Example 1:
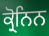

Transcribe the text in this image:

ਕ੍ਰੋਨਿਨ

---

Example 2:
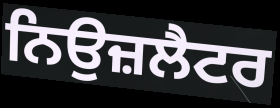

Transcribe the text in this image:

ਨਿਉਜ਼ਲੈਟਰ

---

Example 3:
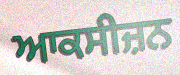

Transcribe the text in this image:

ਆਕਸੀਜ਼ਨ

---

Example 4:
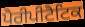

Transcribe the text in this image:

ਪੈਰੀਪੀਟੈਟਿਕ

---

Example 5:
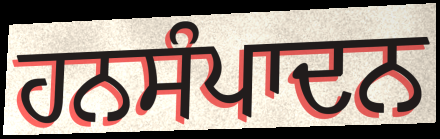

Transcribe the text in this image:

ਹਨਸੰਪਾਦਨ